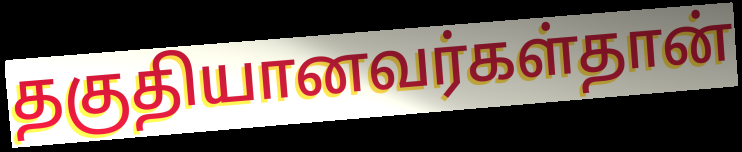
தகுதியானவர்கள்தான்